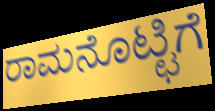
ರಾಮನೊಟ್ಟಿಗೆ